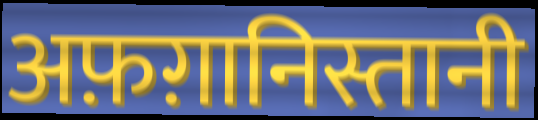
अफ़ग़ानिस्तानी